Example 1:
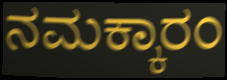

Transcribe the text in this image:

ನಮಕ್ಕಾರಂ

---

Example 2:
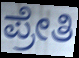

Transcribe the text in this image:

ಪ್ರೇತಿ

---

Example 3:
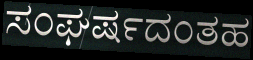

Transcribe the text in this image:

ಸಂಘರ್ಷದಂತಹ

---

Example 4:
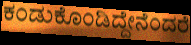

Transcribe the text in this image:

ಕಂಡುಕೊಂಡಿದ್ದೇನೆಂದರೆ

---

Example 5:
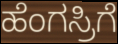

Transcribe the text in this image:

ಹೆಂಗಸ್ರಿಗೆ